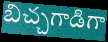
బిచ్చగాడిగా